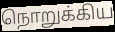
நொறுக்கிய